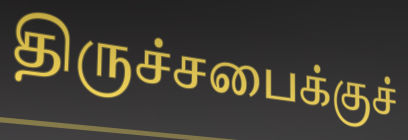
திருச்சபைக்குச்